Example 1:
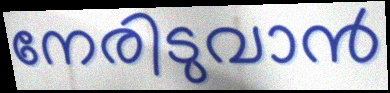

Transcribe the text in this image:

നേരിടുവാൻ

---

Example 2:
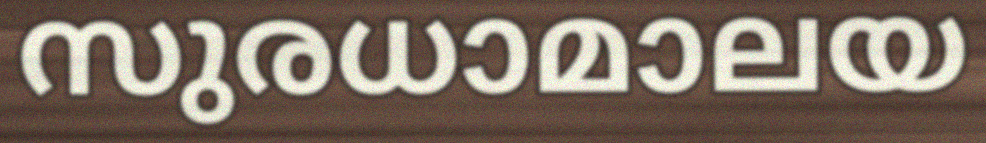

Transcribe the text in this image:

സുരധാമാലയ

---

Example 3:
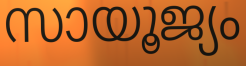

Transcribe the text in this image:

സായൂജ്യം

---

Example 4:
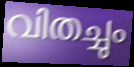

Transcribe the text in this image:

വിതച്ചും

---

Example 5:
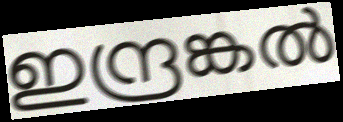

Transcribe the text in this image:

ഇന്ദ്രങ്കൽ